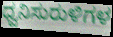
ಧ್ವನಿಸುರುಳಿಗಳ